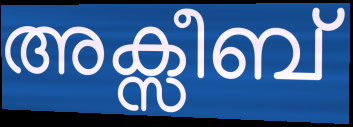
അക്സീബ്